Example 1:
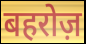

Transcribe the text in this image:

बहरोज़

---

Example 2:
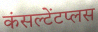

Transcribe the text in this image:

कंसल्टेंटप्लस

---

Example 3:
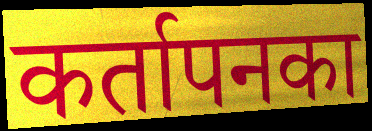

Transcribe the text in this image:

कर्तापनका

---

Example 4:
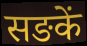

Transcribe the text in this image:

सङकें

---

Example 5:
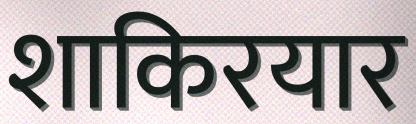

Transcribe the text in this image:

शाकिरयार